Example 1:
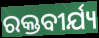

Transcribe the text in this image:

ରକ୍ତବୀର୍ଯ୍ୟ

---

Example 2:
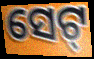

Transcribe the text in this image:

ସେଟ୍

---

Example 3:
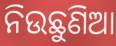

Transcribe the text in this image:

ନିଉଛୁଣିଆ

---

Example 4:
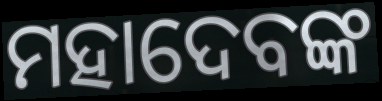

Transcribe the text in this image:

ମହାଦେବଙ୍କ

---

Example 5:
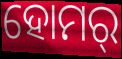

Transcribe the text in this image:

ହୋମର୍